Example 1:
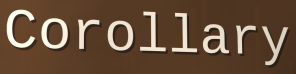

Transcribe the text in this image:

Corollary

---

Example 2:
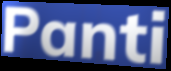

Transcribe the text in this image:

Panti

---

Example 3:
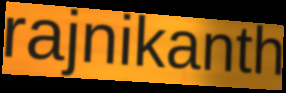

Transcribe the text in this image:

rajnikanth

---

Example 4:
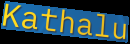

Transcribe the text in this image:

Kathalu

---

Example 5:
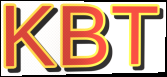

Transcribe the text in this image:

KBT